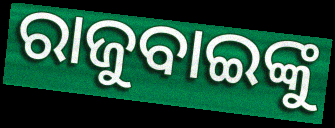
ରାଜୁବାଇଙ୍କୁ